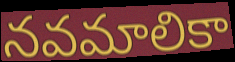
నవమాలికా